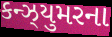
કન્ઝ્યુમરના